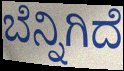
ಬೆನ್ನಿಗಿದೆ